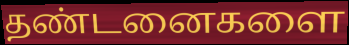
தண்டனைகளை